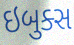
ઇબુક્સ